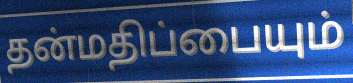
தன்மதிப்பையும்